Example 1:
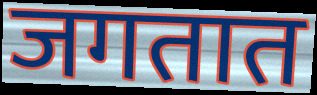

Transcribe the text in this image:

जगतात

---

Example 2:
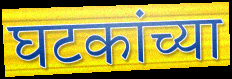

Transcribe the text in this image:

घटकांच्या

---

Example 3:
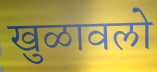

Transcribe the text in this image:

खुळावलो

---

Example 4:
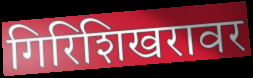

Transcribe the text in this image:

गिरिशिखरावर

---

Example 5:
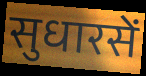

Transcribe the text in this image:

सुधारसें